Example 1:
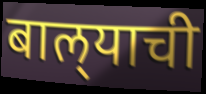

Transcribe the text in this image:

बाल्याची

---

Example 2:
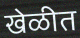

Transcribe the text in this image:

खेळीत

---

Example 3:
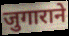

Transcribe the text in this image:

जुगाराने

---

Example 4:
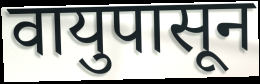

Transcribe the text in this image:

वायुपासून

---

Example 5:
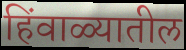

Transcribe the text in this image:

हिंवाळ्यातील